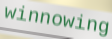
winnowing